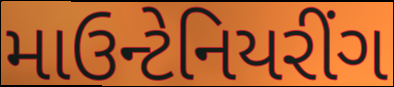
માઉન્ટેનિયરીંગ